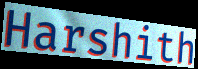
Harshith